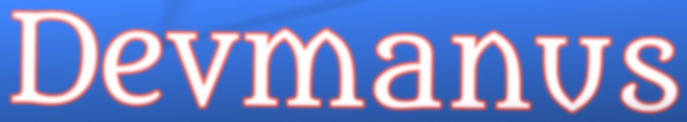
Devmanus